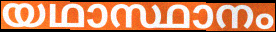
യഥാസ്ഥാനം